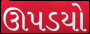
ઊપડયો